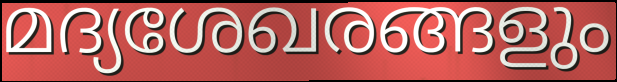
മദ്യശേഖരങ്ങളും